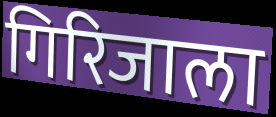
गिरिजाला